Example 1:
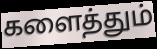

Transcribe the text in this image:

களைத்தும்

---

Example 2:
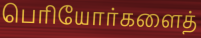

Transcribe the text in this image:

பெரியோர்களைத்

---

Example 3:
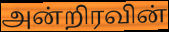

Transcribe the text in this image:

அன்றிரவின்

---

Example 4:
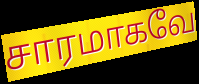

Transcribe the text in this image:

சாரமாகவே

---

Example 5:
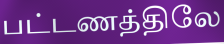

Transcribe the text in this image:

பட்டணத்திலே